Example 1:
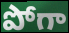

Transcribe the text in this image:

పోగా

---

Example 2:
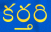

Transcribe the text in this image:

కర్తరి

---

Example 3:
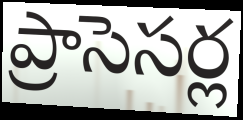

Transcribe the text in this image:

ప్రాసెసర్ల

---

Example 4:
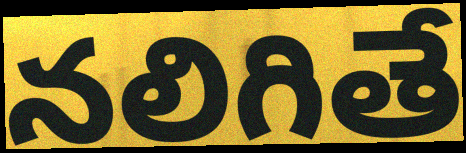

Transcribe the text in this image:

నలిగితే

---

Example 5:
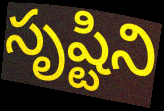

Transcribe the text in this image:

సృష్టిని